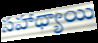
సహాధ్యాయి